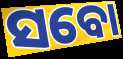
ସବୋ